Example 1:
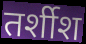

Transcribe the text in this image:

तर्शीश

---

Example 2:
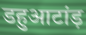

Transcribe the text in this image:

डहुआटांड़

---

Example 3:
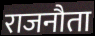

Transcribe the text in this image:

राजनौता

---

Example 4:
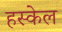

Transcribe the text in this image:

हस्केल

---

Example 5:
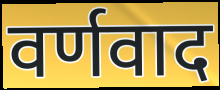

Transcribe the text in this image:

वर्णवाद